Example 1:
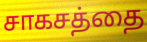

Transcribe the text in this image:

சாகசத்தை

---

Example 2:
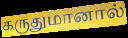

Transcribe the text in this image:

கருதுமானால்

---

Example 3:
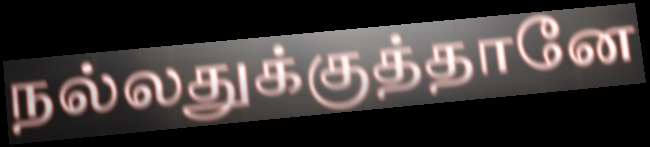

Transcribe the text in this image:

நல்லதுக்குத்தானே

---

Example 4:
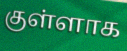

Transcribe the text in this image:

குள்ளாக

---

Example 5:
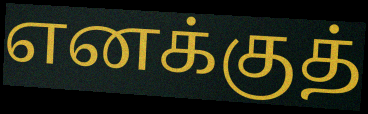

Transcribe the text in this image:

எனக்குத்